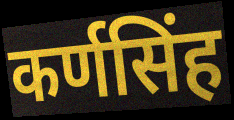
कर्णसिंह